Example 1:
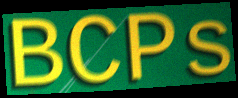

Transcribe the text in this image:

BCPs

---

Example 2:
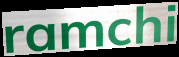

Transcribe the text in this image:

ramchi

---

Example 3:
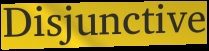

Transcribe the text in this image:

Disjunctive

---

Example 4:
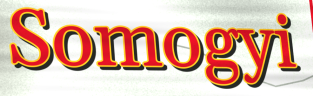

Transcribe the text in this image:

Somogyi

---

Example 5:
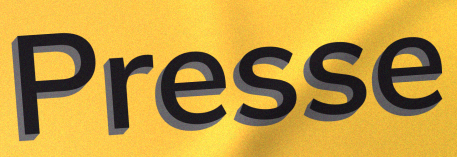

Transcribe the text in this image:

Presse